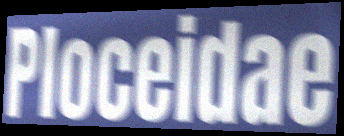
Ploceidae